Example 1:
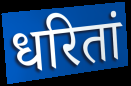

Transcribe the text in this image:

धरितां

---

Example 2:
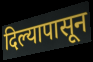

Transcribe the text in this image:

दिल्यापासून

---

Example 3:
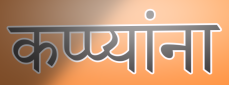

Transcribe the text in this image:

कप्प्यांना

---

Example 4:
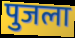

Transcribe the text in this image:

पुजला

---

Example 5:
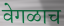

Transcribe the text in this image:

वेगळाच